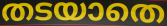
തടയാതെ